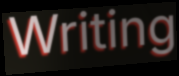
Writing